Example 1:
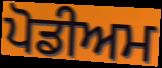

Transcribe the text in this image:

ਪੋਡੀਅਮ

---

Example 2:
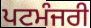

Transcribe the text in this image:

ਪਟਮੰਜਰੀ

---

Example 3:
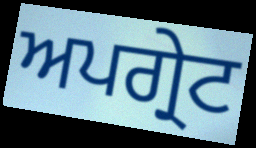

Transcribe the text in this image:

ਅਪਗ੍ਰੇਟ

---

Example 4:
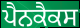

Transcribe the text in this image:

ਪੈਨਕੈਕਸ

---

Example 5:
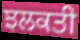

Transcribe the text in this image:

ਝਲਕਤੀ